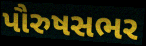
પૌરુષસભર